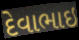
દેવાભાઇ